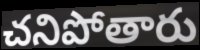
చనిపోతారు